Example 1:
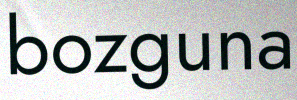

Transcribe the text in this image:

bozguna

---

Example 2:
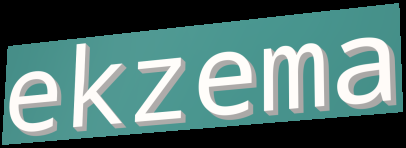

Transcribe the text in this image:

ekzema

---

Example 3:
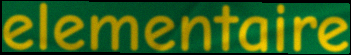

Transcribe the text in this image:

elementaire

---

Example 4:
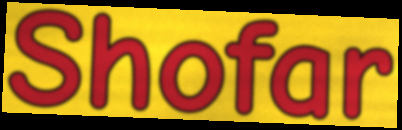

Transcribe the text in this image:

Shofar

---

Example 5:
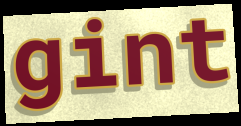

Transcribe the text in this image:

gint